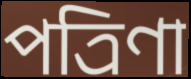
পত্রিণা